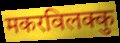
मकरविलक्कु